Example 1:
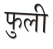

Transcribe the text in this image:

फुली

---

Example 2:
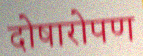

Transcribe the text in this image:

दोषारोपण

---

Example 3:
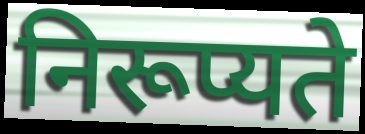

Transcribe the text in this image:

निरूप्यते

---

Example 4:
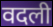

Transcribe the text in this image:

वदली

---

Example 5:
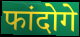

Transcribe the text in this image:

फांदोगे